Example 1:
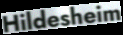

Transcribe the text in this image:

Hildesheim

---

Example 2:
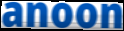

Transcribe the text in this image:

anoon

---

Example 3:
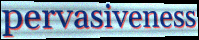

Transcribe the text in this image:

pervasiveness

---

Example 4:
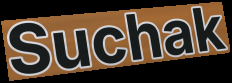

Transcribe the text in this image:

Suchak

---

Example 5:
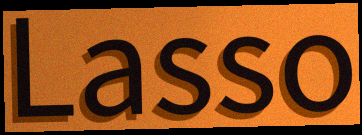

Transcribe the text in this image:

Lasso